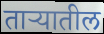
ताऱ्यातील